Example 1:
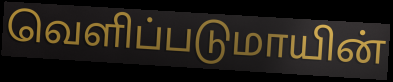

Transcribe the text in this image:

வெளிப்படுமாயின்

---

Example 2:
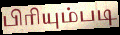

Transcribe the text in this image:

பிரியும்படி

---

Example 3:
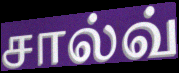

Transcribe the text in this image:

சால்வ்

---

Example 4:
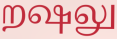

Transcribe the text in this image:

றஷலு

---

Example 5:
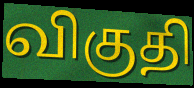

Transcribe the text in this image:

விகுதி